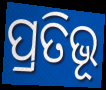
ପ୍ରତିଭୂ